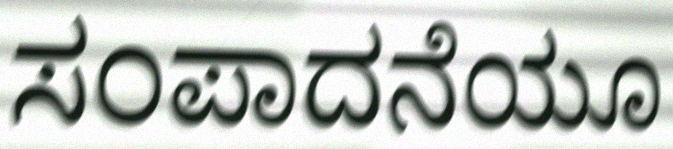
ಸಂಪಾದನೆಯೂ